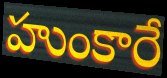
హుంకారే